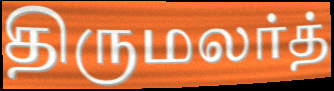
திருமலர்த்